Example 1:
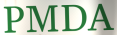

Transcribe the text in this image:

PMDA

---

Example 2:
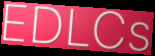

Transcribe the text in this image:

EDLCs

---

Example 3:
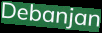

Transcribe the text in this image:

Debanjan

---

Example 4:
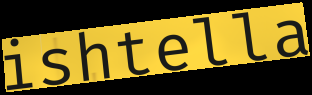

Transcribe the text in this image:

ishtella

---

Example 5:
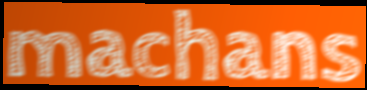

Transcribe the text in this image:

machans